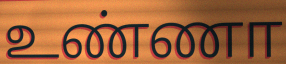
உண்ணா